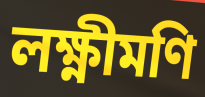
লক্ষ্ণীমণি